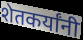
शेतकर्यांनी